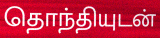
தொந்தியுடன்